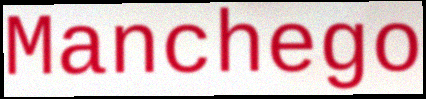
Manchego